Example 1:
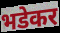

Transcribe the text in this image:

भडेकर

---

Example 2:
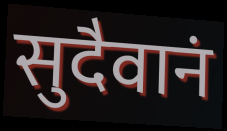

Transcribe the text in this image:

सुदैवानं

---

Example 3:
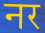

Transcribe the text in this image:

नर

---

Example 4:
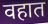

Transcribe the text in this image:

वहात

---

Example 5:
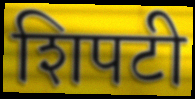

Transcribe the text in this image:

शिपटी